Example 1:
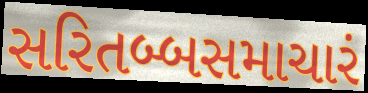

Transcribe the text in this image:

સરિતબ્બસમાચારં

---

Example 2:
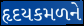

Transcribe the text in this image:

હૃદયકમળને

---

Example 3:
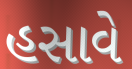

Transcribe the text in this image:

હસાવે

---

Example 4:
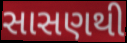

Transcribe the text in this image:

સાસણથી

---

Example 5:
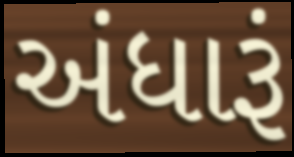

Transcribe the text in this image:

અંધારૂં